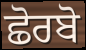
ਛੋਰਬੋ